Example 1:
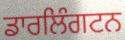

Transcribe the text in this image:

ਡਾਰਲਿੰਗਟਨ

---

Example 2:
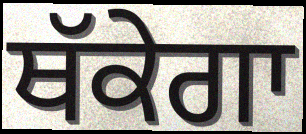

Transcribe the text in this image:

ਥੱਕੇਗਾ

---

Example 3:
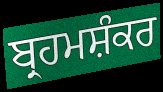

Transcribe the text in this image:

ਬ੍ਰਹਮਸ਼ੰਕਰ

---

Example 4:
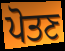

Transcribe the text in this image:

ਪੋਤਣ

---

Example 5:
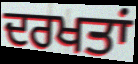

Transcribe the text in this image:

ਦਰਖਤਾਂ